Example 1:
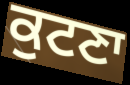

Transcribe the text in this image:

ਕੁਟਣਾ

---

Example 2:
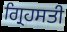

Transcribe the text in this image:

ਗ੍ਰਿਹਸਤੀ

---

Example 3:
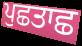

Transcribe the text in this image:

ਪੁਛਤਾਛ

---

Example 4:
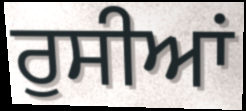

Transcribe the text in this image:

ਰੁਸੀਆਂ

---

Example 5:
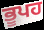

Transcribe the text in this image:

ਭੂਪਹ